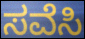
ಸವೆಸಿ